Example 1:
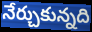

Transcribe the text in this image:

నేర్చుకున్నది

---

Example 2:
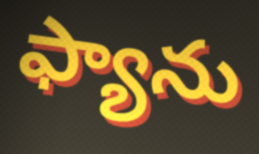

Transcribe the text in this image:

ఫ్యాను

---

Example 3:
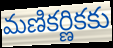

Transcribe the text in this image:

మణికర్ణికకు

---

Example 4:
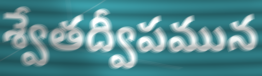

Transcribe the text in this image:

శ్వేతద్వీపమున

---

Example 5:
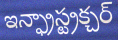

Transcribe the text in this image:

ఇన్ఫ్రాస్ట్రక్చర్